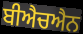
ਬੀਐਚਐਨ